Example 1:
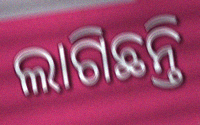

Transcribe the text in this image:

ଲାଗିଛନ୍ତି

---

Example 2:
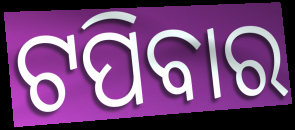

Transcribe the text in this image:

ଟପିବାର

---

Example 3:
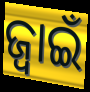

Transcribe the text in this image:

ଜ୍ବାଇଁ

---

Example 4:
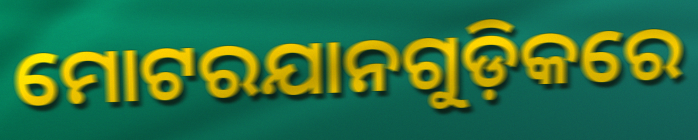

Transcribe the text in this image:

ମୋଟରଯାନଗୁଡ଼ିକରେ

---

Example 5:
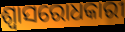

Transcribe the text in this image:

ଶ୍ୱାସରୋଧକାରୀ